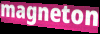
magneton